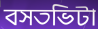
বসতভিটা